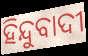
ହିନ୍ଦୁବାଦୀ